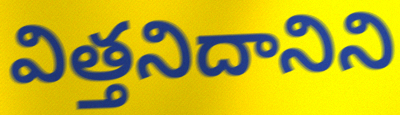
విత్తనిదానిని